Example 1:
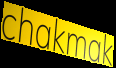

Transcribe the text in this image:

chakmak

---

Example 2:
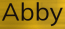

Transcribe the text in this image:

Abby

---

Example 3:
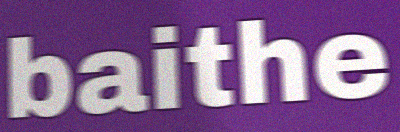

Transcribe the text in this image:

baithe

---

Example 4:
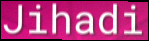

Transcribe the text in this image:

Jihadi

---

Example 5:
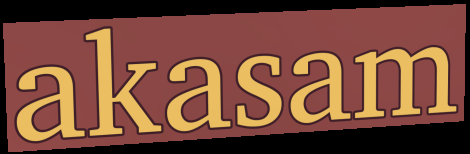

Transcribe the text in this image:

akasam